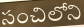
సంచిలోని